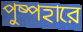
পুষ্পহারে